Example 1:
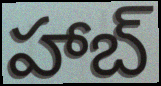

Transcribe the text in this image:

హాబ్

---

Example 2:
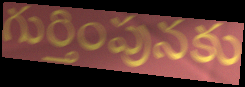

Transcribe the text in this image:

గుర్తింపునకు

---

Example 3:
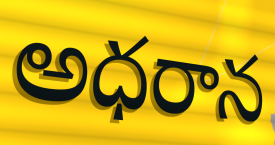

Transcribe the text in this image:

అధరాన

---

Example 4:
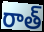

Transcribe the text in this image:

రాత్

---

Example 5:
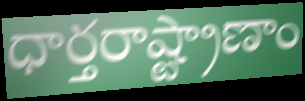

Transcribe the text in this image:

ధార్తరాష్ట్రాణాం